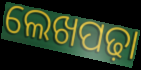
ଲେଖପଢ଼ା